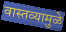
वास्तव्यामुळे